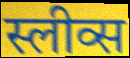
स्लीव्स